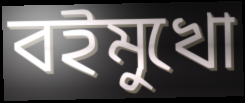
বইমুখো